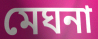
মেঘনা